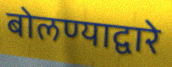
बोलण्याद्वारे